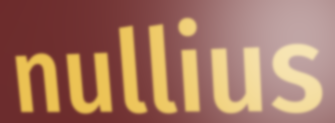
nullius